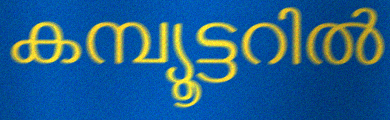
കമ്പ്യൂട്ടറിൽ